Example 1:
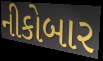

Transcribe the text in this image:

નીકોબાર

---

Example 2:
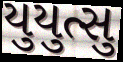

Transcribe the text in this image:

યુયુત્સુ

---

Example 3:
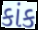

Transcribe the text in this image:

કાંક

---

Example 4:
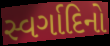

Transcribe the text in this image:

સ્વર્ગાદિનો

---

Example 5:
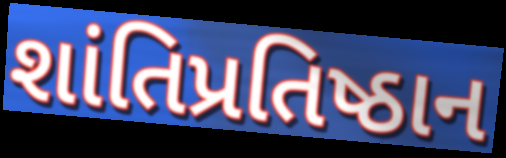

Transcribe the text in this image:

શાંતિપ્રતિષ્ઠાન